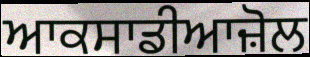
ਆਕਸਾਡੀਆਜ਼ੋਲ